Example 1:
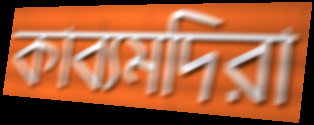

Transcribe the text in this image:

কাব্যমদিরা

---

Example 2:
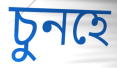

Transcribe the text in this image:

চুনহে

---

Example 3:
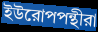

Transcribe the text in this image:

ইউরোপপন্থীরা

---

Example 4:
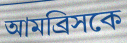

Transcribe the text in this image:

আমব্রিসকে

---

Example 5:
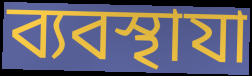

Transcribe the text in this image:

ব্যবস্থাযা